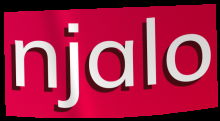
njalo